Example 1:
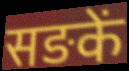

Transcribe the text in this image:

सङकें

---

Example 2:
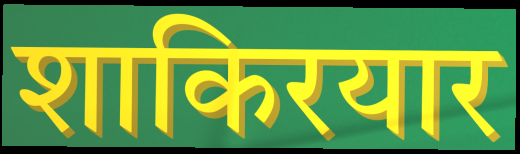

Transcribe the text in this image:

शाकिरयार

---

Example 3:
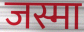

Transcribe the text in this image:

जस्मा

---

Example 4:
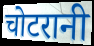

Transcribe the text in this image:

चोटरानी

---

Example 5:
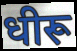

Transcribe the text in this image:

धीरू